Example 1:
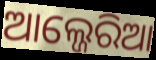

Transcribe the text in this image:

ଆଲ୍ଜେରିଆ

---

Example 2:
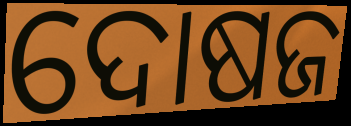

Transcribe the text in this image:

ଦୋଷଜ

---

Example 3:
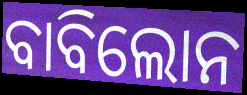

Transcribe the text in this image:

ବାବିଲୋନ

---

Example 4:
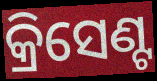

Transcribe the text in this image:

କ୍ରିସେଣ୍ଟ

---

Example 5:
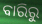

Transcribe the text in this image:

ବାରିରୁ